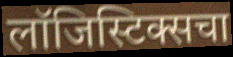
लॉजिस्टिक्सचा